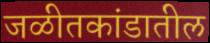
जळीतकांडातील